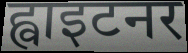
ह्वाइटनर